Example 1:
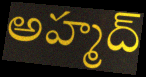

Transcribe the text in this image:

అహ్మద్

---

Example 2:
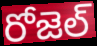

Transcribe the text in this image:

రోజెల్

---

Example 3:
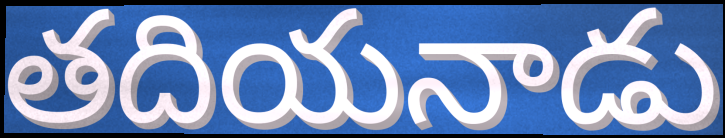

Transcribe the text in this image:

తదియనాడు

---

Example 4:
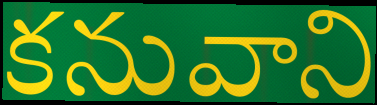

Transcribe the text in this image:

కనువాని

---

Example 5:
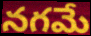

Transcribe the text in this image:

నగమే